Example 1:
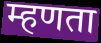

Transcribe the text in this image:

म्हणता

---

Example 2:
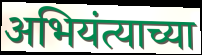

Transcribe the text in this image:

अभियंत्याच्या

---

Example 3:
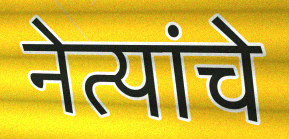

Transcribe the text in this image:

नेत्यांचे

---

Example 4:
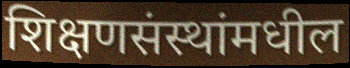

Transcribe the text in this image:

शिक्षणसंस्थांमधील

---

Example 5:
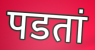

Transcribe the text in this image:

पडतां